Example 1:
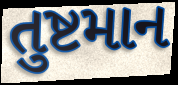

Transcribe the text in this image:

તુષ્ટમાન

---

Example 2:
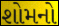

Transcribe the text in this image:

શોમનો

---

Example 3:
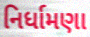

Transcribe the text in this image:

નિર્ધામણા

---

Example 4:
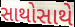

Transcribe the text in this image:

સાથોસાથે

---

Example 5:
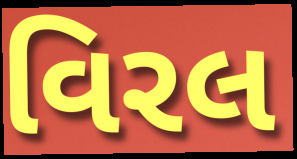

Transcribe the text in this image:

વિરલ